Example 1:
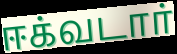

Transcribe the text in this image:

ஈக்வடார்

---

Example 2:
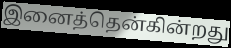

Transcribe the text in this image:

இனைத்தென்கின்றது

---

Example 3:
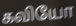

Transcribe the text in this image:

கவியோ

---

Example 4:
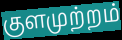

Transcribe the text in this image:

குளமுற்றம்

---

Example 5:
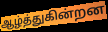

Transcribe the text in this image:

ஆழ்த்துகின்றன